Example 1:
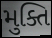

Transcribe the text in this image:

મુક્તિ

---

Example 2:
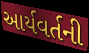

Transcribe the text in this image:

આર્યવર્તની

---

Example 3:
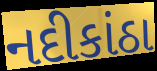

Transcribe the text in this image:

નદીકાંઠા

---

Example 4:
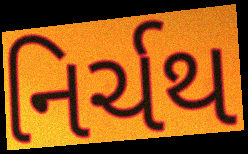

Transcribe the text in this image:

નિર્ચથ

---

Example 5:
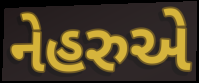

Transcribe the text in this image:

નેહરુએ